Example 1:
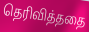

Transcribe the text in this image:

தெரிவித்ததை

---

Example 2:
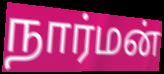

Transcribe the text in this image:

நார்மன்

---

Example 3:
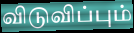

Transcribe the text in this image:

விடுவிப்பும்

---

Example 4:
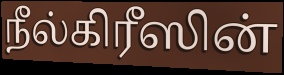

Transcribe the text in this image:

நீல்கிரீஸின்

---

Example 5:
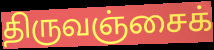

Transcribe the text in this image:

திருவஞ்சைக்